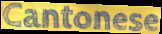
Cantonese